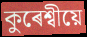
কুৰেশ্বীয়ে